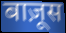
बाज़ूस